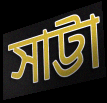
সাট্টা